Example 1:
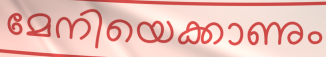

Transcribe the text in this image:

മേനിയെക്കാണും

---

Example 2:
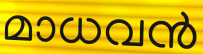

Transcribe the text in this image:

മാധവൻ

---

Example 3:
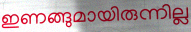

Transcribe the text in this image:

ഇണങ്ങുമായിരുന്നില്ല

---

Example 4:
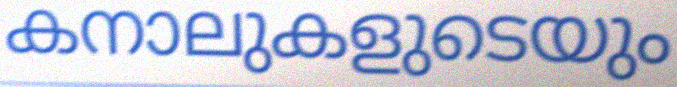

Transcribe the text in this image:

കനാലുകളുടെയും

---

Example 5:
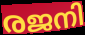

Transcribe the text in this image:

രജനി